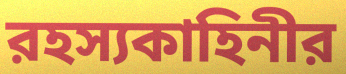
রহস্যকাহিনীর